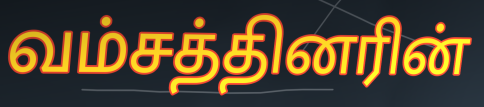
வம்சத்தினரின்